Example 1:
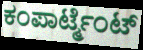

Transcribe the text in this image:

ಕಂಪಾರ್ಟ್ಮೆಂಟ್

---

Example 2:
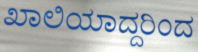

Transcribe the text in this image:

ಖಾಲಿಯಾದ್ದರಿಂದ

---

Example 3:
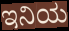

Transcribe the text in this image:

ಇನಿಯ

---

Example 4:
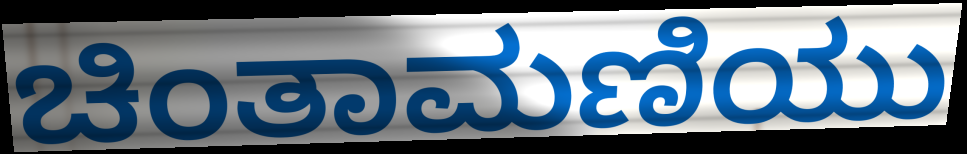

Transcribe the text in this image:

ಚಿಂತಾಮಣಿಯು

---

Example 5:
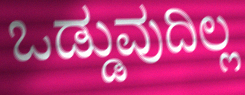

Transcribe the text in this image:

ಒಡ್ಡುವುದಿಲ್ಲ